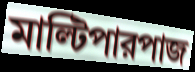
মাল্টিপারপাজ